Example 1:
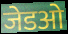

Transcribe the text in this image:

जेडओ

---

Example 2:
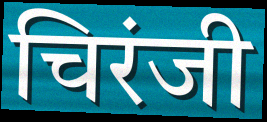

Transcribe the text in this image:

चिरंजी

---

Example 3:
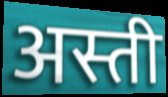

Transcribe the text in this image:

अस्ती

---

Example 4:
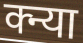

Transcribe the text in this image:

क्न्या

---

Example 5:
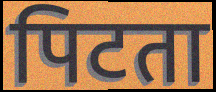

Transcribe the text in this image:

पिटता